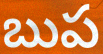
బుప